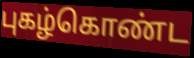
புகழ்கொண்ட